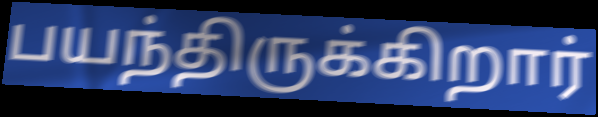
பயந்திருக்கிறார்